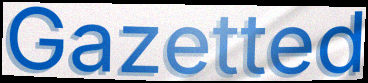
Gazetted